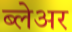
ब्लेअर